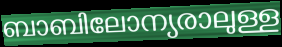
ബാബിലോന്യരാലുള്ള